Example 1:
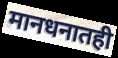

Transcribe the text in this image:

मानधनातही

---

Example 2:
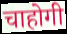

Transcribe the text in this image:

चाहोगी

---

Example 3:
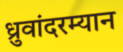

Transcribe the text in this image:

ध्रुवांदरम्यान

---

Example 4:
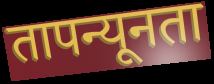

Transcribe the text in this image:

तापन्यूनता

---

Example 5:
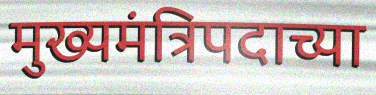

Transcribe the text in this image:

मुख्यमंत्रिपदाच्या